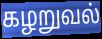
கழறுவல்